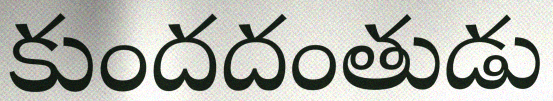
కుందదంతుడు